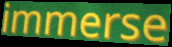
immerse